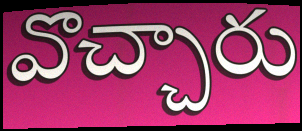
వొచ్చారు